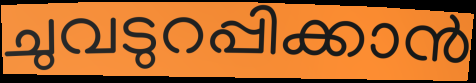
ചുവടുറപ്പിക്കാൻ